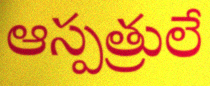
ఆస్పత్రులే